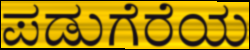
ಪಡುಗೆರೆಯ